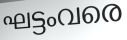
ഘട്ടംവരെ